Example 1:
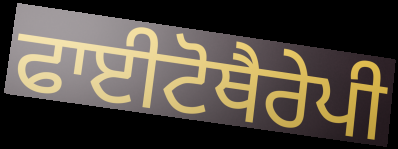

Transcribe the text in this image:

ਫਾਈਟੋਥੈਰੇਪੀ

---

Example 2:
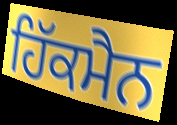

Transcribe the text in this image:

ਹਿੱਕਮੈਨ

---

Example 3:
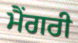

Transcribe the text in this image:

ਮੈਂਗਰੀ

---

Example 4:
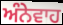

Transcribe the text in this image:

ਅੰਨੇਵਾਹ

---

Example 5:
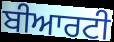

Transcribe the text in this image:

ਬੀਆਰਟੀ